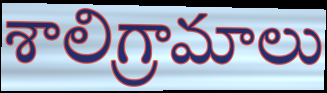
శాలిగ్రామాలు